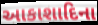
આકાશાદિના